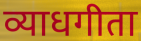
व्याधगीता